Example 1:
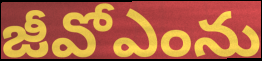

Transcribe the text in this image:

జీవోఎంను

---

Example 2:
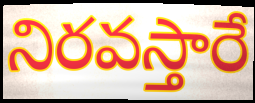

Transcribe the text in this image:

నిరవస్తారే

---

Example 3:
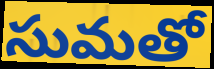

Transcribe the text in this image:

సుమతో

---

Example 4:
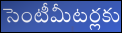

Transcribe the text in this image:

సెంటీమీటర్లకు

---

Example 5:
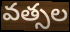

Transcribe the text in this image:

వత్సల